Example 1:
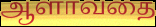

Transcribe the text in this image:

ஆளாவதை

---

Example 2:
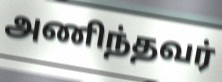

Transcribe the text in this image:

அணிந்தவர்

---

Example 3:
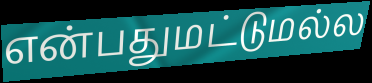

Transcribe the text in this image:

என்பதுமட்டுமல்ல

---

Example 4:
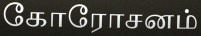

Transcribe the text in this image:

கோரோசனம்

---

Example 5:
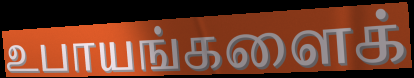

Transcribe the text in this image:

உபாயங்களைக்